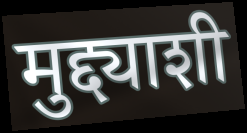
मुद्द्याशी